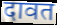
दावत